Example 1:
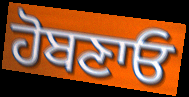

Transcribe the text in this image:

ਹੋਬਣਾਓ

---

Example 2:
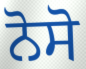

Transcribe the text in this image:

ਨੋਸੋ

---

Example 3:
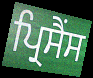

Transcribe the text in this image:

ਪ੍ਰਿਸੈਂਸ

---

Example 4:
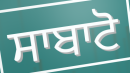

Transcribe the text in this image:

ਸਾਬਾਟੋ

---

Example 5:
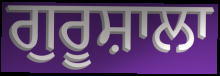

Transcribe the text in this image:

ਗੁਰੂਸ਼ਾਲਾ